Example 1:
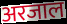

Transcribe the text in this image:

अरजाल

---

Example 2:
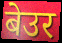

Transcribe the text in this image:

बेउर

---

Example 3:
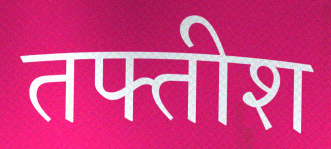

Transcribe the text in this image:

तफ्तीश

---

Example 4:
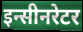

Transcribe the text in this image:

इन्सीनरेटर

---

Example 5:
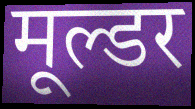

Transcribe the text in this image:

मूल्डर